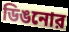
ডিঙনোর